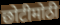
छोटीमोठी